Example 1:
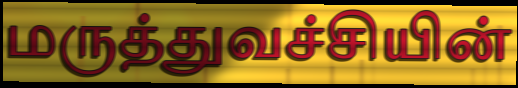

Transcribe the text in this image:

மருத்துவச்சியின்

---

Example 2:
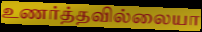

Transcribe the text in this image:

உணர்த்தவில்லையா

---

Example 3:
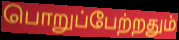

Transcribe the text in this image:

பொறுப்பேற்றதும்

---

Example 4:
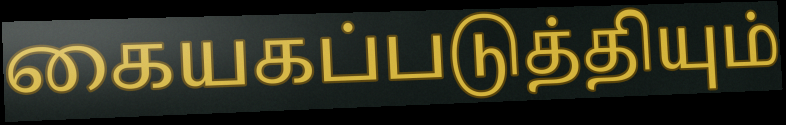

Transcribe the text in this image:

கையகப்படுத்தியும்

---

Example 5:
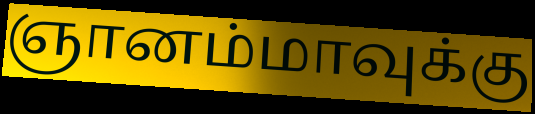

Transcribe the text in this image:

ஞானம்மாவுக்கு